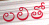
లలితో